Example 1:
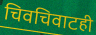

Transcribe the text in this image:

चिवचिवाटही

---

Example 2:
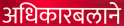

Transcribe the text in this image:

अधिकारबलाने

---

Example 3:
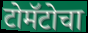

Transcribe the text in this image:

टोमॅटोचा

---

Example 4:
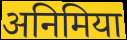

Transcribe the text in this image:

अनिमिया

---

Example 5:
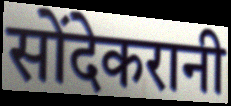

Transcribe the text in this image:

सोंदेकरानी